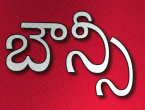
బౌన్సీ